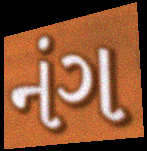
નંગ